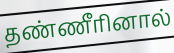
தண்ணீரினால்